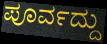
ಪೂರ್ವದ್ದು